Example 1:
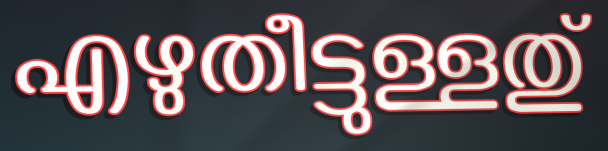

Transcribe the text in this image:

എഴുതീട്ടുള്ളതു്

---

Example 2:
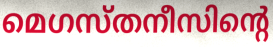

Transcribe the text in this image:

മെഗസ്തനീസിന്റെ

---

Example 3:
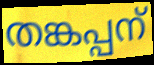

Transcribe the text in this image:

തങ്കപ്പന്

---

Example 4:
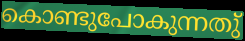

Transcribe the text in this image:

കൊണ്ടുപോകുന്നതു്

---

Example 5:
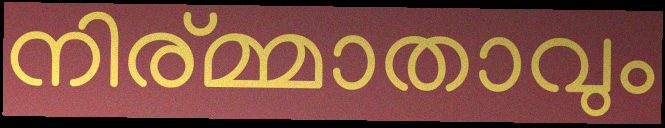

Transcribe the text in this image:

നിര്മ്മാതാവും